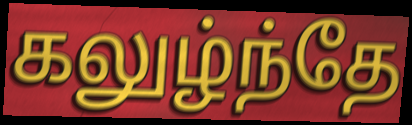
கலுழ்ந்தே